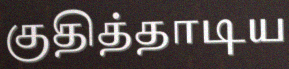
குதித்தாடிய